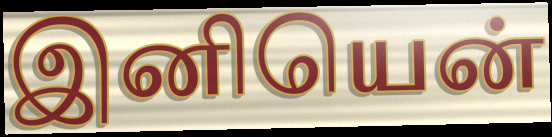
இனியென்